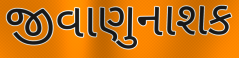
જીવાણુનાશક